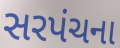
સરપંચના